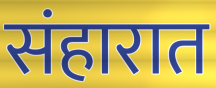
संहारात